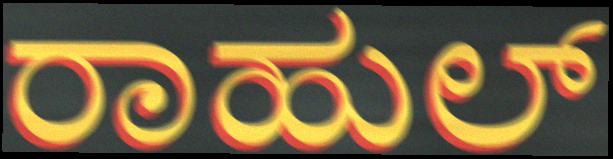
ರಾಹುಲ್